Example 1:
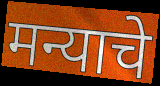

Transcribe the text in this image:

मन्याचे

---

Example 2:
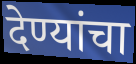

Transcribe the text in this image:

देण्यांचा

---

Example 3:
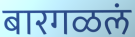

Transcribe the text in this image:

बारगळलं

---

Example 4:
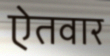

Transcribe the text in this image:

ऐतवार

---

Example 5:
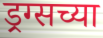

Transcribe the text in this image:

ड्रग्सच्या